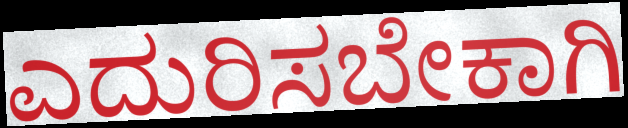
ಎದುರಿಸಬೇಕಾಗಿ